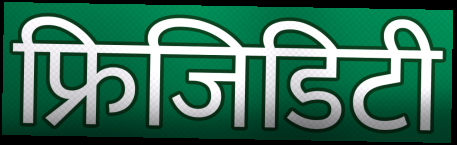
फ्रिजिडिटी